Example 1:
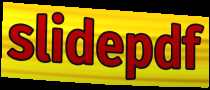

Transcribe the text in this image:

slidepdf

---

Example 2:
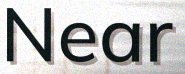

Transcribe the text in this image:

Near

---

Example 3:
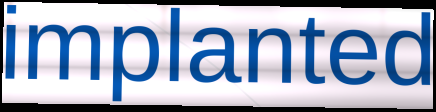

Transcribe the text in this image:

implanted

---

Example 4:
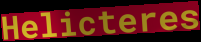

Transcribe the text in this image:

Helicteres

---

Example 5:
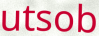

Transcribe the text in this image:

utsob